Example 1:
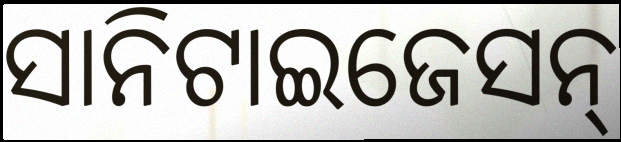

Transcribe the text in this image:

ସାନିଟାଇଜେସନ୍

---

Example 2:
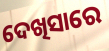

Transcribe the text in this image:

ଦେଖିସାରେ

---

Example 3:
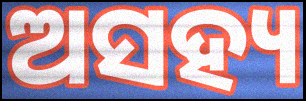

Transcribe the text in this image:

ଅସହ୍ୟ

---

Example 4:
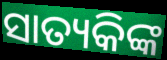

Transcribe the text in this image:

ସାତ୍ୟକିଙ୍କ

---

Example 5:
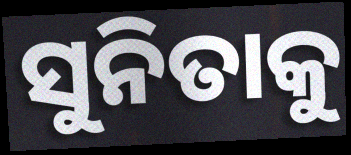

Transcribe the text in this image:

ସୁନିତାକୁ